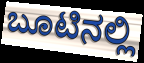
ಬೂಟಿನಲ್ಲಿ